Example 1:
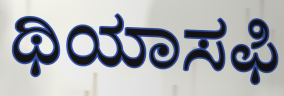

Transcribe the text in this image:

ಥಿಯಾಸಫಿ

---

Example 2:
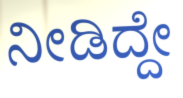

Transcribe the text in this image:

ನೀಡಿದ್ದೇ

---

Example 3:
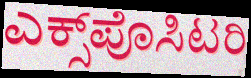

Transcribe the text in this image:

ಎಕ್ಸ್‌ಪೊಸಿಟರಿ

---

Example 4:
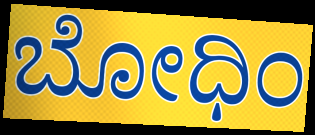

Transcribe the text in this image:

ಬೋಧಿಂ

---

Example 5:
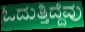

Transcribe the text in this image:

ಓದುತ್ತಿದ್ದೆವು